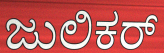
ಜುಲಿಕರ್